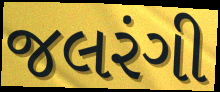
જલરંગી